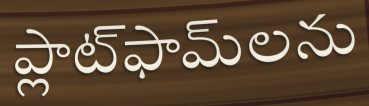
ప్లాట్‌ఫామ్‌లను